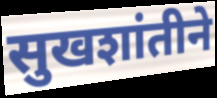
सुखशांतीने